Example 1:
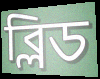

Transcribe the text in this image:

ব্লিড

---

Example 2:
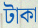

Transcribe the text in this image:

টাকা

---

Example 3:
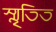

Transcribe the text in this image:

স্মৃতিত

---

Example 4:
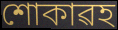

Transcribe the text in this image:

শোকাৱহ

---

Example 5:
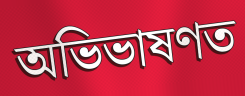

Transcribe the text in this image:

অভিভাষণত